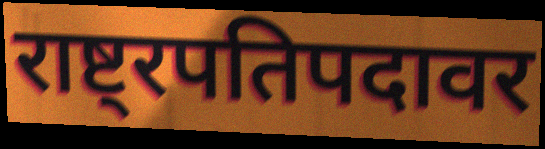
राष्ट्रपतिपदावर